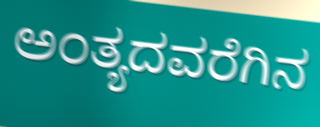
ಅಂತ್ಯದವರೆಗಿನ